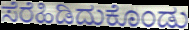
ಸೆರೆಹಿಡಿದುಕೊಂಡು